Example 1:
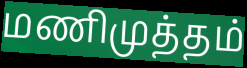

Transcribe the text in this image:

மணிமுத்தம்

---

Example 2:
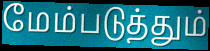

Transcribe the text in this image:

மேம்படுத்தும்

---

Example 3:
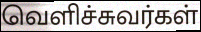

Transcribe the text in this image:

வெளிச்சுவர்கள்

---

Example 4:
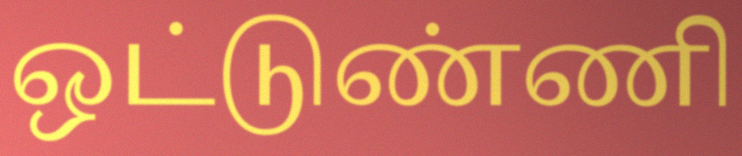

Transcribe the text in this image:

ஒட்டுண்ணி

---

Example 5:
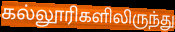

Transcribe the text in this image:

கல்லூரிகளிலிருந்து